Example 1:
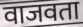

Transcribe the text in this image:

वाजवता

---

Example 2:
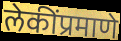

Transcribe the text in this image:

लेकींप्रमाणे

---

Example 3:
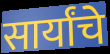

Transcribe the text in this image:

सार्यांचे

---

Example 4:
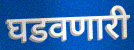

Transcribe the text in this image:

घडवणारी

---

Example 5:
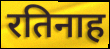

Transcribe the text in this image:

रतिनाह